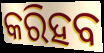
କରିହବ